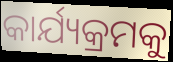
କାର୍ଯ୍ୟକ୍ରମକୁ